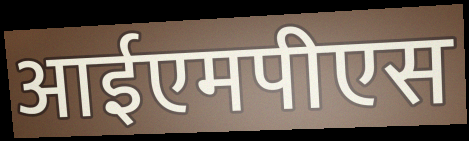
आईएमपीएस